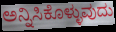
ಅನ್ನಿಸಿಕೊಳ್ಳುವುದು